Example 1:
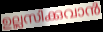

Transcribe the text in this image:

ഉല്ലസിക്കുവാൻ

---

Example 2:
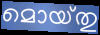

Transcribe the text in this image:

മൊയ്‌തു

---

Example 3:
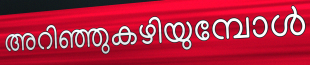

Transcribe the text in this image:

അറിഞ്ഞുകഴിയുമ്പോൾ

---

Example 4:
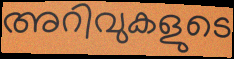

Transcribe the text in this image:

അറിവുകളുടെ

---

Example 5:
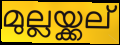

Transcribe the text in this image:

മുല്ലയ്ക്കല്